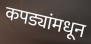
कपड्यांमधून